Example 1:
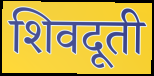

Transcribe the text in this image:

शिवदूती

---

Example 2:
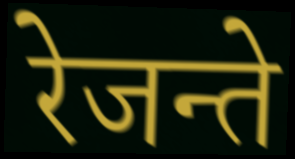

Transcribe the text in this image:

रेजन्ते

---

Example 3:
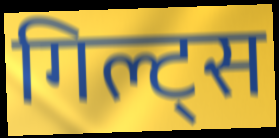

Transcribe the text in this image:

गिल्ट्स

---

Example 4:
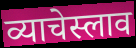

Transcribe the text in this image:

व्याचेस्लाव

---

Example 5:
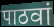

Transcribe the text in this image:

पाठवां